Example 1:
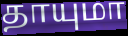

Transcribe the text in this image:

தாயுமா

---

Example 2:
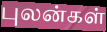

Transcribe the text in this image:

புலன்கள்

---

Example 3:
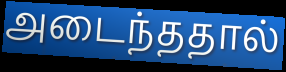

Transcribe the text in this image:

அடைந்ததால்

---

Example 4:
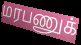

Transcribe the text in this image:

மரபணுக்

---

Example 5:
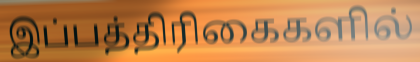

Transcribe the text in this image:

இப்பத்திரிகைகளில்